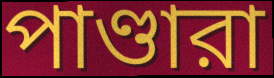
পাণ্ডারা